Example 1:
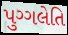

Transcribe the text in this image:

પુગ્ગલેતિ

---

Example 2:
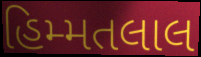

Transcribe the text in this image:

હિમ્મતલાલ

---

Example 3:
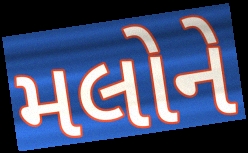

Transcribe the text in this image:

મલોને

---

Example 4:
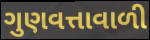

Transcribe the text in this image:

ગુણવત્તાવાળી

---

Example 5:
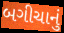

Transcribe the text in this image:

બગીચાનું